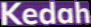
Kedah